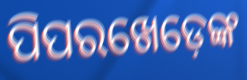
ପିପରଖେଡ଼େଙ୍କ